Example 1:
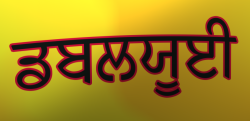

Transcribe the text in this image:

ਡਬਲਯੂਈ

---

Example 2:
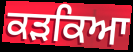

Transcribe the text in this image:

ਕੜਕਿਆ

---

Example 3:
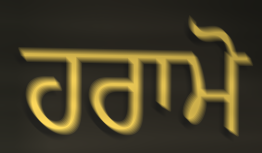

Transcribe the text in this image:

ਹਰਾਮੋ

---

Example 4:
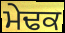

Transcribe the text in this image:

ਮੇਢਕ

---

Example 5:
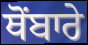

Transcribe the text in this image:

ਥੋਂਬਾਰੇ